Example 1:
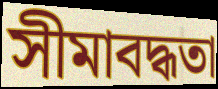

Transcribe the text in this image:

সীমাবদ্ধতা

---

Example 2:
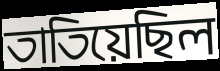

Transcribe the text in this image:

তাতিয়েছিল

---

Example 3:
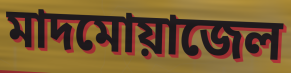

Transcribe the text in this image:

মাদমোয়াজেল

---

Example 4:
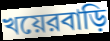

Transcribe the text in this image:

খয়েরবাড়ি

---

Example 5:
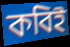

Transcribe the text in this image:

কবিই